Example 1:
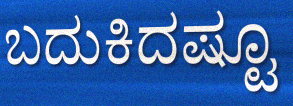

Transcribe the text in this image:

ಬದುಕಿದಷ್ಟೂ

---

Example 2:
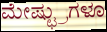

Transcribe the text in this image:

ಮೇಷ್ಟ್ರುಗಳೂ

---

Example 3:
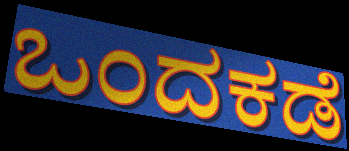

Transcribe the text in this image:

ಒಂದಕಡೆ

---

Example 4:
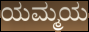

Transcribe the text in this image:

ಯಮ್ಮಯ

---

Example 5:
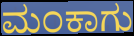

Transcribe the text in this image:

ಮಂಕಾಗು